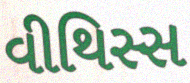
વીથિસ્સ